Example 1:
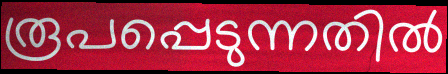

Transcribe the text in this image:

രൂപപ്പെടുന്നതിൽ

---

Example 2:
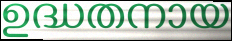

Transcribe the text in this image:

ഉദ്ധതനായ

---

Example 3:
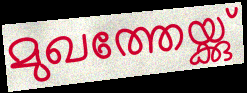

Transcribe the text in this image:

മുഖത്തേയ്ക്കു്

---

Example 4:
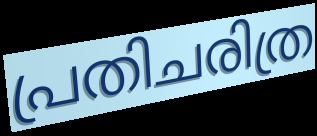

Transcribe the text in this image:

പ്രതിചരിത്ര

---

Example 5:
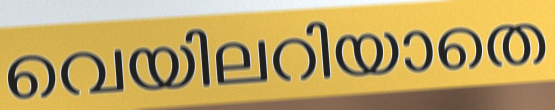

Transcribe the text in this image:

വെയിലറിയാതെ